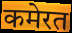
कमेरत